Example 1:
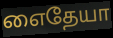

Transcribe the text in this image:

எைதேயா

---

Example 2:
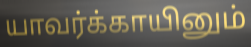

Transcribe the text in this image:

யாவர்க்காயினும்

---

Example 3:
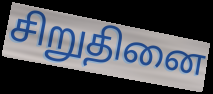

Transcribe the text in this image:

சிறுதினை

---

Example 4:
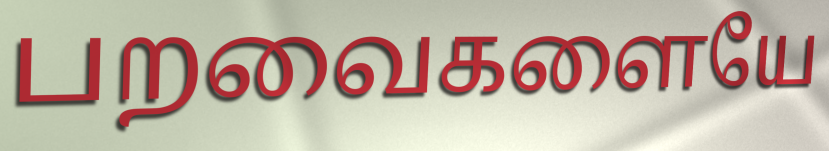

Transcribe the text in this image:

பறவைகளையே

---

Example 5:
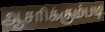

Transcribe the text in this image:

ஆசரிக்கும்படி